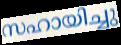
സഹായിച്ചു